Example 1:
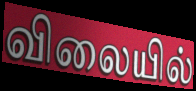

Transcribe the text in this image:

விலையில்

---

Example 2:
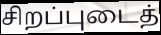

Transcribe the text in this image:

சிறப்புடைத்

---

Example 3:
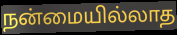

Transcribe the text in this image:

நன்மையில்லாத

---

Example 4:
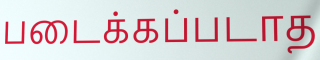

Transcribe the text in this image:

படைக்கப்படாத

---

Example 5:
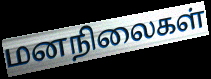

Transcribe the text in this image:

மனநிலைகள்